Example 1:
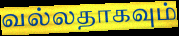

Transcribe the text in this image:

வல்லதாகவும்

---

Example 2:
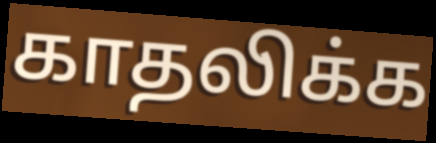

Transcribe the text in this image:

காதலிக்க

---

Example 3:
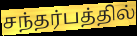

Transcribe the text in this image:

சந்தர்பத்தில்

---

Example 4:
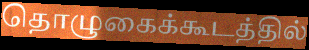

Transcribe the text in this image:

தொழுகைக்கூடத்தில்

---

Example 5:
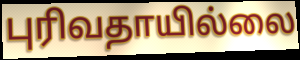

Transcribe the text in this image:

புரிவதாயில்லை